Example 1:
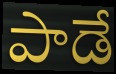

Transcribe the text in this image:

పాడే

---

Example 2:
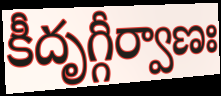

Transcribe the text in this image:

కీదృగ్గీర్వాణః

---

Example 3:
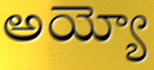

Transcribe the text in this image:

అయ్యో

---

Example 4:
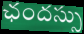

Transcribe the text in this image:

ఛందస్సు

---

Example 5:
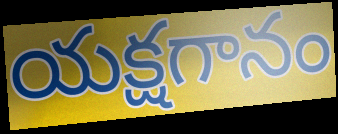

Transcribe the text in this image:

యక్షగానం